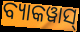
ବ୍ୟାକୱାସ୍